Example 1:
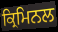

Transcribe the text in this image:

ਕ੍ਰਿਮਿਨਲ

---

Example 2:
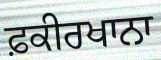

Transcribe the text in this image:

ਫ਼ਕੀਰਖਾਨਾ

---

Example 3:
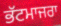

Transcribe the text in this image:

ਭੱਟਮਾਜਰਾ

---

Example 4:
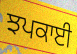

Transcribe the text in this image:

ਝਪਕਾਈ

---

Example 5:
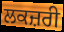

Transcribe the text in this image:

ਲਕਜ਼ਰੀ